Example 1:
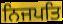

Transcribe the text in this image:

ਨਿਜਪਤਿ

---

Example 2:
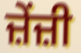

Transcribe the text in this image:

ਜ਼ੇਂਜ਼ੀ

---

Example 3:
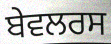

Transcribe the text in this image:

ਬੇਵਲਰਸ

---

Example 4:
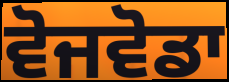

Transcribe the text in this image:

ਵੋਜਵੋਡਾ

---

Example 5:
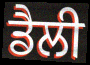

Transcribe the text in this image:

ਡੈਲੀ